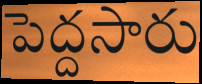
పెద్దసారు